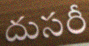
దుసరీ